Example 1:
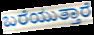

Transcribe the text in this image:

ಬರೆಯುತ್ತಾರೆ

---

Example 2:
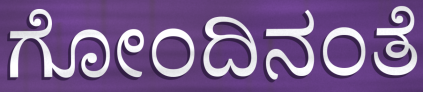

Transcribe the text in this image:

ಗೋಂದಿನಂತೆ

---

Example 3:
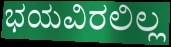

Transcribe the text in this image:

ಭಯವಿರಲಿಲ್ಲ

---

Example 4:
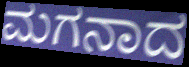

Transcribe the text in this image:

ಮಗನಾದ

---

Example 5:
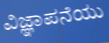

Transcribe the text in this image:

ವಿಜ್ಞಾಪನೆಯು